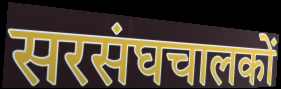
सरसंघचालकों